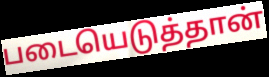
படையெடுத்தான்